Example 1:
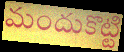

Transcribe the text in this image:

మందుకొట్టి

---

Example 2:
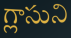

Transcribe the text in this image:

గ్లాసుని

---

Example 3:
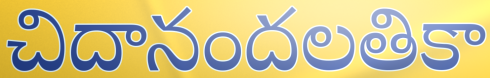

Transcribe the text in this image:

చిదానందలతికా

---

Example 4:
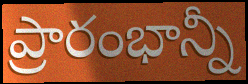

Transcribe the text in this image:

ప్రారంభాన్నీ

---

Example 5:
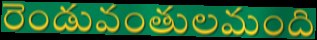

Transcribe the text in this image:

రెండువంతులమంది